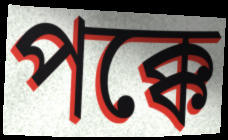
পক্কে